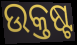
ଉକ୍ତଷ୍ଟ